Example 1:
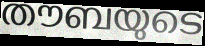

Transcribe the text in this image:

തൗബയുടെ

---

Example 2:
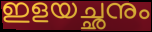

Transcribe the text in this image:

ഇളയച്ഛനും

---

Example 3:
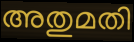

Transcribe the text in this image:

അതുമതി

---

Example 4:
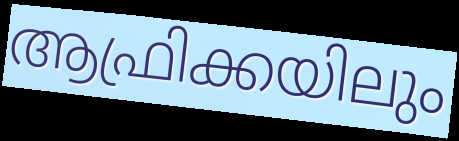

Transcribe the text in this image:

ആഫ്രിക്കയിലും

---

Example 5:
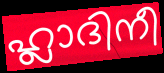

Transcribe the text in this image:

ഹ്ലാദിനീ